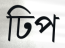
ঢিপ